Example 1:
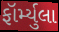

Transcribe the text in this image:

ફૉર્મ્યુલા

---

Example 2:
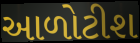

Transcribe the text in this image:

આળોટીશ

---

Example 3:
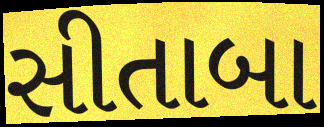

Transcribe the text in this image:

સીતાબા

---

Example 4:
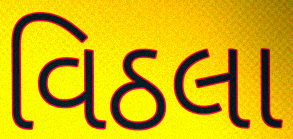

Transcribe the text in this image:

વિઠલા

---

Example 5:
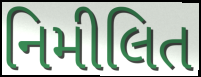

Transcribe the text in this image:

નિમીલિત